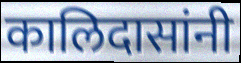
कालिदासांनी